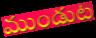
ముండుట